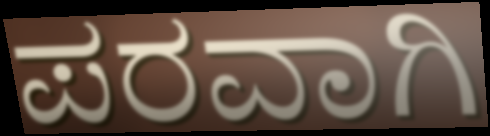
ಪರವಾಗಿ